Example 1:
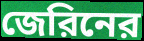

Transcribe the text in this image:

জেরিনের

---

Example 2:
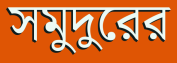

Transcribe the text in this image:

সমুদুরের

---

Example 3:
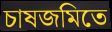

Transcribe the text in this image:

চাষজমিতে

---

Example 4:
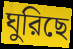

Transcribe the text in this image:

ঘুরিছে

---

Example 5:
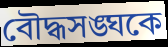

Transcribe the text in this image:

বৌদ্ধসঙ্ঘকে